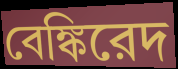
বেঙ্কিরেদ